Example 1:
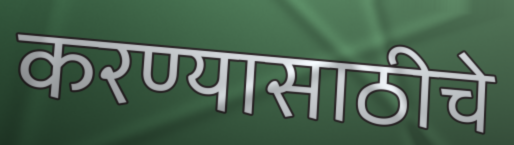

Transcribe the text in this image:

करण्यासाठीचे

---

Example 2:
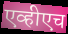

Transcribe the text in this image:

एव्हीएच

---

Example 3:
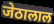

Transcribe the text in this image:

जेठालाल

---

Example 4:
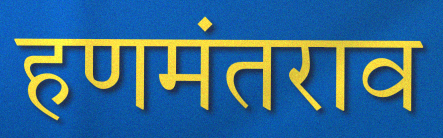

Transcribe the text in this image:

हणमंतराव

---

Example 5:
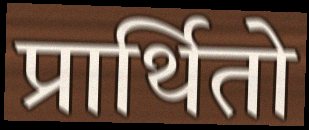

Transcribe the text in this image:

प्रार्थितो